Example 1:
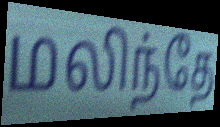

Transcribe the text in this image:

மலிந்தே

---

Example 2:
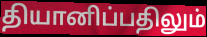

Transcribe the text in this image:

தியானிப்பதிலும்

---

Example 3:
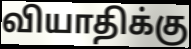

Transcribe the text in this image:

வியாதிக்கு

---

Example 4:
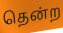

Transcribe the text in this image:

தென்ற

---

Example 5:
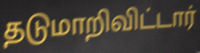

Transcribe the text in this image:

தடுமாறிவிட்டார்